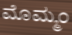
ಮೊಮ್ಮಂ